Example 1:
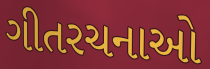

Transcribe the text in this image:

ગીતરચનાઓ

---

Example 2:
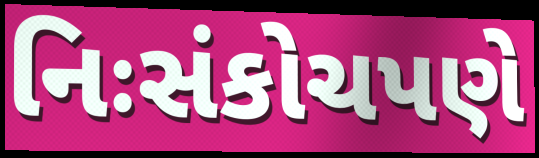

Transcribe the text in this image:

નિઃસંકોચપણે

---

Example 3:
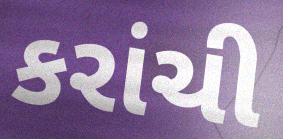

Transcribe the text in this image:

કરાંચી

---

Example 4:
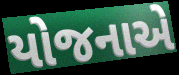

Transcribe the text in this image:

યોજનાએ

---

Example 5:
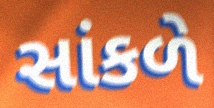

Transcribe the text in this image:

સાંકળે